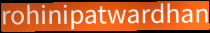
rohinipatwardhan